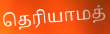
தெரியாமத்